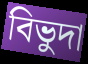
বিভুদা